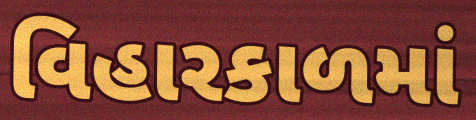
વિહારકાળમાં